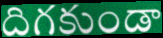
దిగకుండా